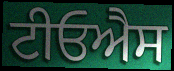
ਟੀਓਐਸ